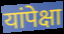
यांपेक्षा